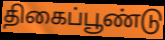
திகைப்பூண்டு